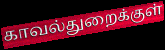
காவல்துறைக்குள்